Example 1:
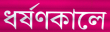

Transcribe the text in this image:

ধর্ষণকালে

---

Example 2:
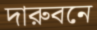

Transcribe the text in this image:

দারুবনে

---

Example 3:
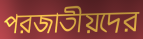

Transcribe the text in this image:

পরজাতীয়দের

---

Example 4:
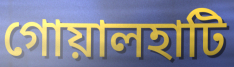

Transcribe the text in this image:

গোয়ালহাটি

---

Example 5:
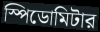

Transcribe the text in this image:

স্পিডোমিটার